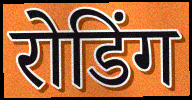
रोडिंग